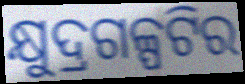
କ୍ଷୁଦ୍ରଗଳ୍ପଟିର